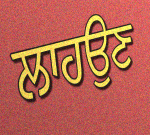
ਲਾਹਉਣ